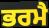
ਭਰਮੈ